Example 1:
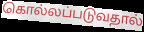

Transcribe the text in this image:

கொல்லப்படுவதால்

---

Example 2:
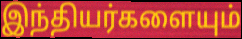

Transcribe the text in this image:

இந்தியர்களையும்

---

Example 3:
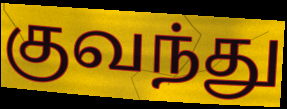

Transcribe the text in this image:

குவந்து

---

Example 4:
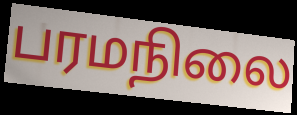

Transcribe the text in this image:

பரமநிலை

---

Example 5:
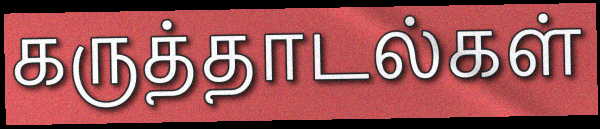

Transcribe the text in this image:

கருத்தாடல்கள்